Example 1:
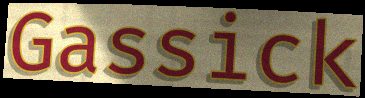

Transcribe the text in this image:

Gassick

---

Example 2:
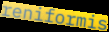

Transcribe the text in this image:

reniformis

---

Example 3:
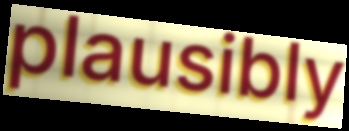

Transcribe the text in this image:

plausibly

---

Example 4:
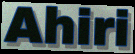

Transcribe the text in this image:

Ahiri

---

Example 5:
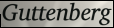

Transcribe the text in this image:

Guttenberg